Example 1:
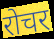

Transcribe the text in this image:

रोचर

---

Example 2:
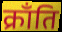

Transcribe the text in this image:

क्राँति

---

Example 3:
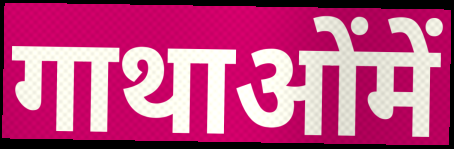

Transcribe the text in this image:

गाथाओंमें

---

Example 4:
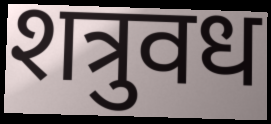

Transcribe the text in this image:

शत्रुवध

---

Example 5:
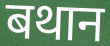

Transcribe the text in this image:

बथान